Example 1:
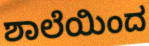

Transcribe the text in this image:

ಶಾಲೆಯಿಂದ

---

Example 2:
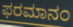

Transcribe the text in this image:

ಫರಮಾನಂ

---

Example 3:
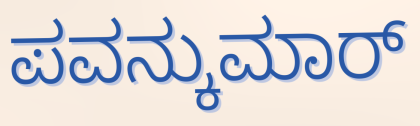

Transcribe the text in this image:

ಪವನ್ಕುಮಾರ್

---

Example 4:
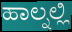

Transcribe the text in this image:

ಹಾಲ್ನಲ್ಲಿ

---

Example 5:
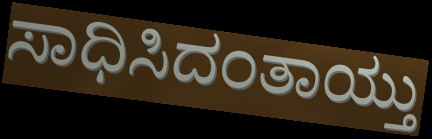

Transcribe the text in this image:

ಸಾಧಿಸಿದಂತಾಯ್ತು